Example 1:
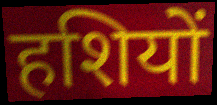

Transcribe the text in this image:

हशियों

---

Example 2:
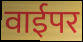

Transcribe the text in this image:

वाईपर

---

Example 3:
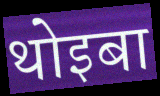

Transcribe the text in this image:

थोइबा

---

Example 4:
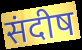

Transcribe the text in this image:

संदीष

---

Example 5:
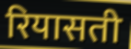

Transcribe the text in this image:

रियासती